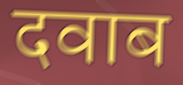
दवाब